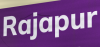
Rajapur